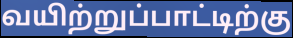
வயிற்றுப்பாட்டிற்கு